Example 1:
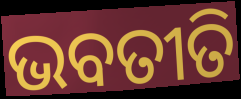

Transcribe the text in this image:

ଭବତୀତି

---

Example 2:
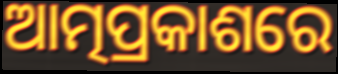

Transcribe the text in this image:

ଆତ୍ମପ୍ରକାଶରେ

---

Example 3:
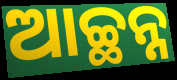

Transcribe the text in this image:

ଆଚ୍ଛନ୍ନ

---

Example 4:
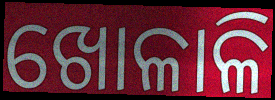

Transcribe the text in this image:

ଖୋଳାଳି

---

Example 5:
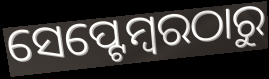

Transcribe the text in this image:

ସେପ୍ଟେମ୍ବରଠାରୁ